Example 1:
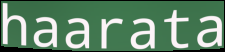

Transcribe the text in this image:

haarata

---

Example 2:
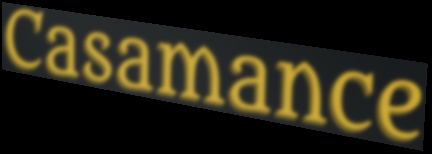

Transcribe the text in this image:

Casamance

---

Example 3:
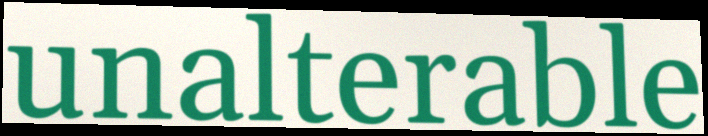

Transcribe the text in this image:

unalterable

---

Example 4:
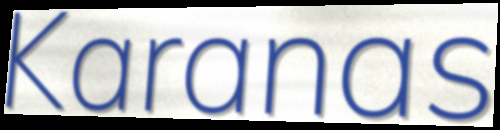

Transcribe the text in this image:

Karanas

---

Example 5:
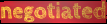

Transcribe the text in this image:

negotiated